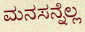
ಮನಸನ್ನೆಲ್ಲ